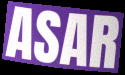
ASAR